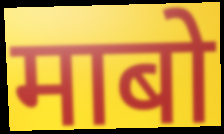
माबो